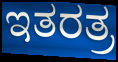
ಇತರತ್ರ